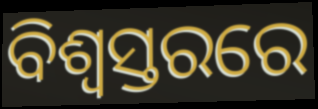
ବିଶ୍ୱସ୍ତରରେ